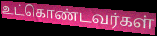
உட்கொண்டவர்கள்